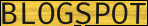
BLOGSPOT